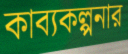
কাব্যকল্পনার